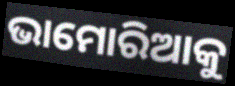
ଭାମୋରିଆକୁ